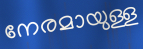
നേരമായുള്ള